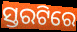
ସ୍ତରଟିରେ